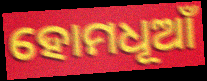
ହୋମଧୂଆଁ